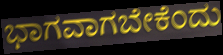
ಭಾಗವಾಗಬೇಕೆಂದು